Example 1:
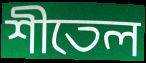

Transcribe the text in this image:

শীতেল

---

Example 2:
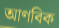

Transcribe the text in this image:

আণবিক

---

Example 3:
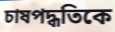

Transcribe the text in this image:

চাষপদ্ধতিকে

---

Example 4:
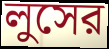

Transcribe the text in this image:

লুসের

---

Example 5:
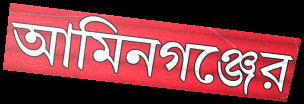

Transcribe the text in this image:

আমিনগঞ্জের